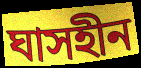
ঘাসহীন